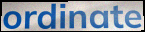
ordinate